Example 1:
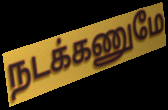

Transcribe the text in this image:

நடக்கணுமே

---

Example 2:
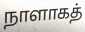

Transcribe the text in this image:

நாளாகத்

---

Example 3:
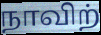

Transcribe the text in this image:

நாவிற்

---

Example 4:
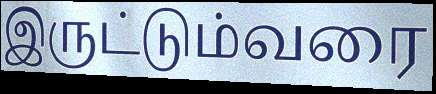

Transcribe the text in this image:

இருட்டும்வரை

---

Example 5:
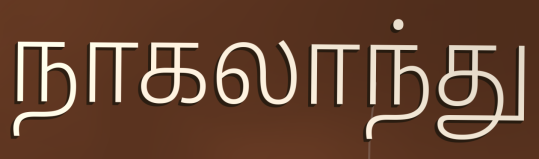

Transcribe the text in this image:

நாகலாந்து